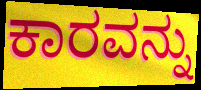
ಕಾರವನ್ನು